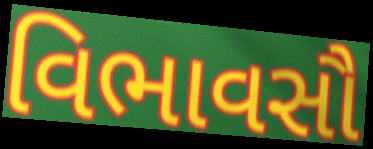
વિભાવસૌ